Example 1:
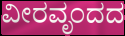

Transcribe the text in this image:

ವೀರವೃಂದದ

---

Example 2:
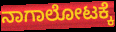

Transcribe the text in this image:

ನಾಗಾಲೋಟಕ್ಕೆ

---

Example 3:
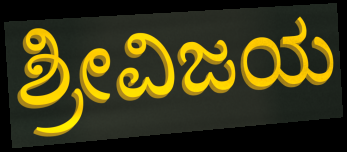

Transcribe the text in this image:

ಶ್ರೀವಿಜಯ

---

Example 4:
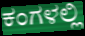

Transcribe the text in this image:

ಕಂಗಳಲ್ಲಿ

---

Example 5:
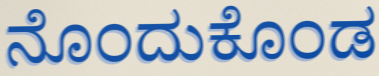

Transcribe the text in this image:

ನೊಂದುಕೊಂಡ